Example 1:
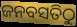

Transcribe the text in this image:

ଜନବସତିଠୁ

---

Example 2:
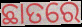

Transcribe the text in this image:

ଛାତରେ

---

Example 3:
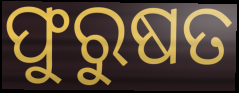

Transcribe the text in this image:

ଫୁରୁଷତ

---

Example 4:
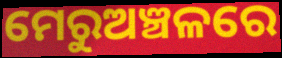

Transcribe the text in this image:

ମେରୁଅଞ୍ଚଳରେ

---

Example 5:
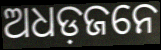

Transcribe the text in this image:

ଅଧଡ଼ଜନେ